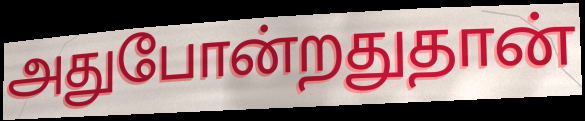
அதுபோன்றதுதான்